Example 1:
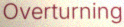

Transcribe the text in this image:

Overturning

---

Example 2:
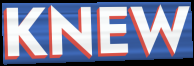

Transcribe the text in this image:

KNEW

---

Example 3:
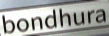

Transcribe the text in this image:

bondhura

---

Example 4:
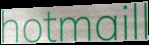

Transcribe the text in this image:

hotmaill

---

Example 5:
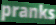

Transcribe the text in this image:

pranks